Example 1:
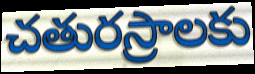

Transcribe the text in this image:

చతురస్రాలకు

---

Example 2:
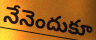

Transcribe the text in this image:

నేనెందుకూ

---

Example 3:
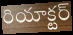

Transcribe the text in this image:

రియాక్టర్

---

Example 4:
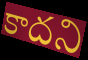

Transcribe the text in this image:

కాదని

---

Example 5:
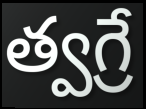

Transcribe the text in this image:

త్వగ్రే